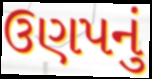
ઉણપનું